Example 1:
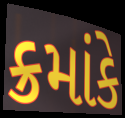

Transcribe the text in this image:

ક્રમાંકે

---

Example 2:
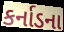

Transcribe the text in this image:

કર્નાડના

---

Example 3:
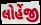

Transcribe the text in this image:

લોહેંજી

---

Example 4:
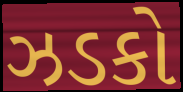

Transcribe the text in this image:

ઝડકો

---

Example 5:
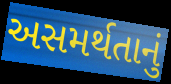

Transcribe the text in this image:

અસમર્થતાનું